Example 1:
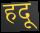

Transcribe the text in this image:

हदू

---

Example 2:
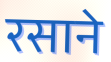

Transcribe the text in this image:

रसाने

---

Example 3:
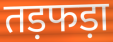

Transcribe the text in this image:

तड़फड़ा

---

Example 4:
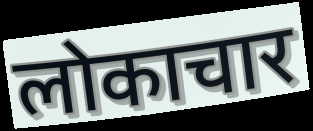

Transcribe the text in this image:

लोकाचार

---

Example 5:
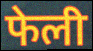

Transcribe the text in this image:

फेली